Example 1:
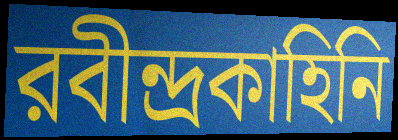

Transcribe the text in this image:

রবীন্দ্রকাহিনি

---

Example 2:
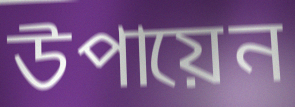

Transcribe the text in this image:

উপায়েন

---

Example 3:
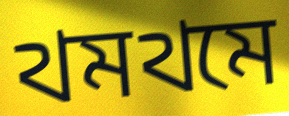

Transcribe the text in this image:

থমথমে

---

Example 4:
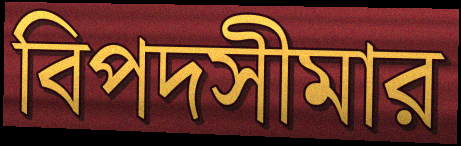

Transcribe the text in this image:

বিপদসীমার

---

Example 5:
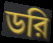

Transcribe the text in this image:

ডরি